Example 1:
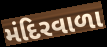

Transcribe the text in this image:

મંદિરવાળા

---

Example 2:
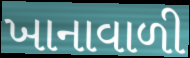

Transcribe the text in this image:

ખાનાવાળી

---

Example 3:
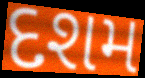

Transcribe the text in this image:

દશમ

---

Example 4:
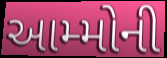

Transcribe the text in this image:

આમ્મોની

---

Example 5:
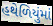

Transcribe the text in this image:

હથેળિયુંમાં